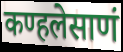
कण्हलेसाणं